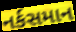
નર્કસમાન